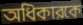
অধিকারকে